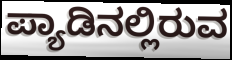
ಪ್ಯಾಡಿನಲ್ಲಿರುವ